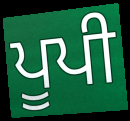
ਪੂਪੀ